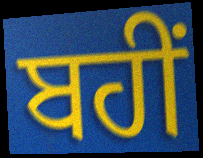
ਬਹੀਂ